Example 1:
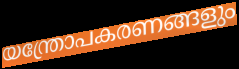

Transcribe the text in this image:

യന്ത്രോപകരണങ്ങളും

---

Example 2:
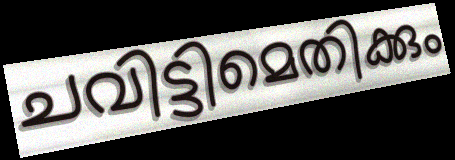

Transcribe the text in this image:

ചവിട്ടിമെതിക്കും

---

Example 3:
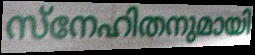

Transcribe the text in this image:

സ്നേഹിതനുമായി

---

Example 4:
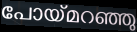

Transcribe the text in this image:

പോയ്മറഞ്ഞു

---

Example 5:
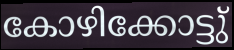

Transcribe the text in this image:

കോഴിക്കോട്ടു്